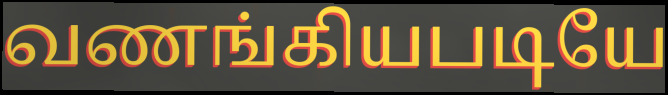
வணங்கியபடியே